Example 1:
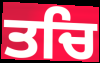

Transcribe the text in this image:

ਤਚਿ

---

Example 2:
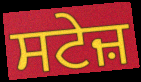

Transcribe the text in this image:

ਸਟੇਜ਼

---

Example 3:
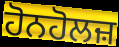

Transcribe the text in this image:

ਹੋਨਹੋਲਜ਼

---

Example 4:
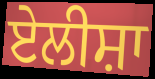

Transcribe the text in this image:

ਏਲੀਸ਼ਾ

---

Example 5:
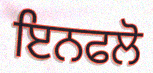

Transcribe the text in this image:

ਇਨਫਲੋ